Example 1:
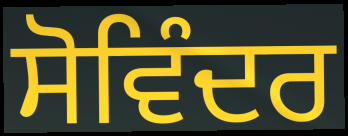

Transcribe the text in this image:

ਸੋਵਿੰਦਰ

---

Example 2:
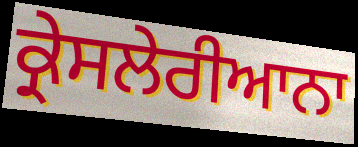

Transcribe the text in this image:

ਕ੍ਰੇਸਲੇਰੀਆਨਾ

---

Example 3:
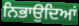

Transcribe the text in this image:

ਨਿਭਾਉਦਿਆਂ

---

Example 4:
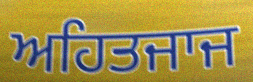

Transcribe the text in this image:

ਅਹਿਤਜਾਜ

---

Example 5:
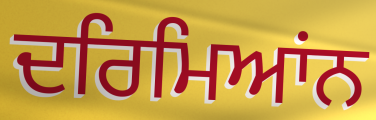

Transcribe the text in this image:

ਦਰਿਮਿਆਂਨ